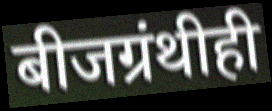
बीजग्रंथीही